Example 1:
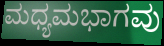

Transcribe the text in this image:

ಮಧ್ಯಮಭಾಗವು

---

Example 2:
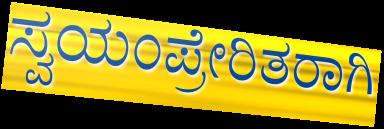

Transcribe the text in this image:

ಸ್ವಯಂಪ್ರೇರಿತರಾಗಿ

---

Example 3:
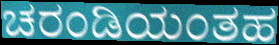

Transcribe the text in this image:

ಚರಂಡಿಯಂತಹ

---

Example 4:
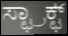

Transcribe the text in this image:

ಸ್ಟ್ರಾಕ್ಟ್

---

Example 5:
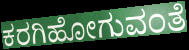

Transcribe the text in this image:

ಕರಗಿಹೋಗುವಂತೆ